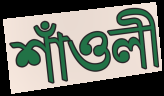
শাঁওলী